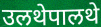
उलथेपालथे